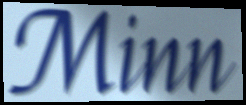
Minn